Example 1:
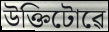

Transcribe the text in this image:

উক্তিটোৱে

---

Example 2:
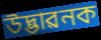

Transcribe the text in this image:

উদ্ভাৱনক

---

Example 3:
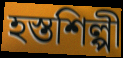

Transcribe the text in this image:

হস্তশিল্পী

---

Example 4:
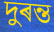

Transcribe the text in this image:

দুৰন্ত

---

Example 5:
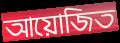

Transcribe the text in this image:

আয়োজিত